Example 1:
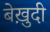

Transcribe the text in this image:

बेख़ुदी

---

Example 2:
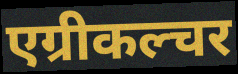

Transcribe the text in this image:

एग्रीकल्चर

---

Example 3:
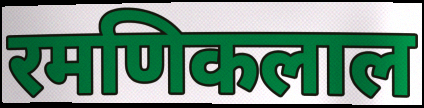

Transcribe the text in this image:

रमणिकलाल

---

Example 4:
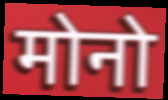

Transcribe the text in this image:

मोनो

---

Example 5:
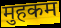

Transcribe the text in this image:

मुहकम